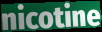
nicotine